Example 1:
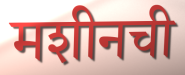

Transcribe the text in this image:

मशीनची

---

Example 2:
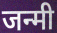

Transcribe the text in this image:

जन्मी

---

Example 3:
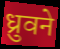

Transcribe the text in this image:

ध्रुवने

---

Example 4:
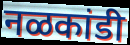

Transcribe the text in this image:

नळकांडी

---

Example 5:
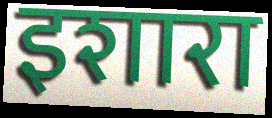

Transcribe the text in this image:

इशारा